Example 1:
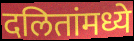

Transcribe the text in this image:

दलितांमध्ये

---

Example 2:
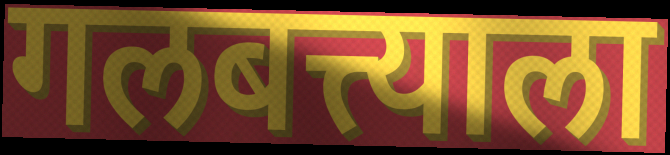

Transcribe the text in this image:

गलबत्त्याला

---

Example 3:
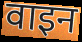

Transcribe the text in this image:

वाइन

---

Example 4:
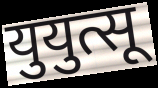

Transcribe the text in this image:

युयुत्सू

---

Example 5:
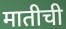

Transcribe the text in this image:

मातीची